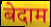
बेदाम